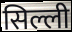
सिल्ली